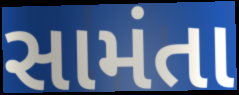
સામંતા